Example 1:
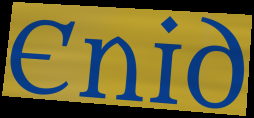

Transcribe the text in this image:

Enid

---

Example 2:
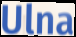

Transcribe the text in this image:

Ulna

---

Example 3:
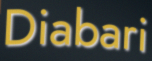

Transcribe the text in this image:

Diabari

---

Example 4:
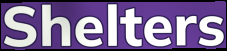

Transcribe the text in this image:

Shelters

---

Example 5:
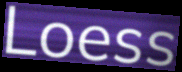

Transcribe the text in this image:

Loess